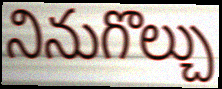
నినుగొల్చు